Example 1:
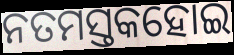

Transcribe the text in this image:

ନତମସ୍ତକହୋଇ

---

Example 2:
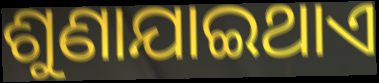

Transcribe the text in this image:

ଶୁଣାଯାଇଥାଏ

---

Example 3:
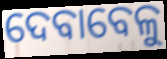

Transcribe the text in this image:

ଦେବାବେଳୁ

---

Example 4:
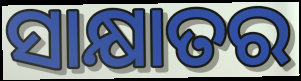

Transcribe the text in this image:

ସାକ୍ଷାତର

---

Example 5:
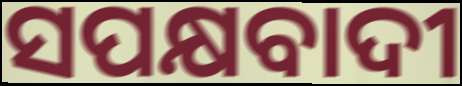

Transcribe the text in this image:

ସପକ୍ଷବାଦୀ